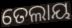
ତେଲାୟ